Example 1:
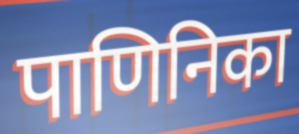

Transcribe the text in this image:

पाणिनिका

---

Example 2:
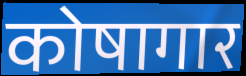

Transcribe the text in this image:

कोषागार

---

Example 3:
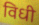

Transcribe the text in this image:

विधी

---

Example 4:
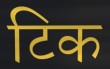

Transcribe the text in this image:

टिक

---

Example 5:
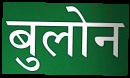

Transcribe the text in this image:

बुलोन